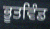
ਭੂਤਵਿੰਡ